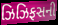
ઝિઝિફસની